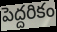
పెద్దరికం